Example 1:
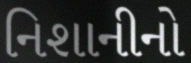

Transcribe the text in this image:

નિશાનીનો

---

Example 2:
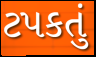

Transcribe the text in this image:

ટપકતું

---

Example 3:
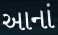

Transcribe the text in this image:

આનાં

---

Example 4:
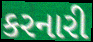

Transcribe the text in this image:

કરનારી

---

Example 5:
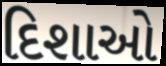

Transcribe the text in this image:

દિશાઓ